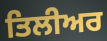
ਤਿਲੀਅਰ